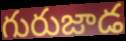
గురుజాడ